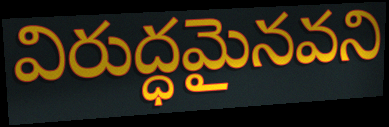
విరుద్ధమైనవని